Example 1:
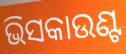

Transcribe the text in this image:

ଭିସକାଉଣ୍ଟ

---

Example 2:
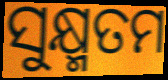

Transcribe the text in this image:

ସୁକ୍ଷ୍ମତମ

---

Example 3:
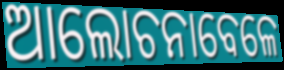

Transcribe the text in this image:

ଆଲୋଚନାବେଳେ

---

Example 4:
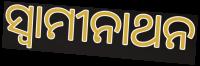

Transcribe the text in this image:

ସ୍ୱାମୀନାଥନ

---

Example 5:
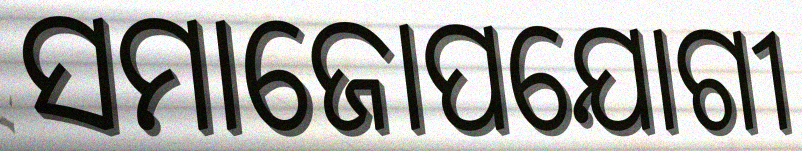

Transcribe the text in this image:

ସମାଜୋପଯୋଗୀ